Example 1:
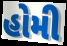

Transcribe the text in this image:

હોમી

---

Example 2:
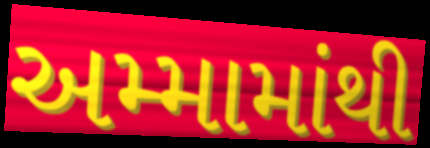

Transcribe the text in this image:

અમ્મામાંથી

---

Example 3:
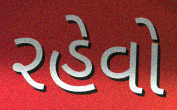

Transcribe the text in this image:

રહેવો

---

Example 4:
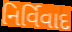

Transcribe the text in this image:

નિર્વિવાદ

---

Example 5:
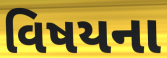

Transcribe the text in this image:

વિષયના